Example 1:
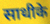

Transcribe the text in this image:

साथीके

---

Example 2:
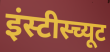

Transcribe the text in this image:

इंस्टीस्च्यूट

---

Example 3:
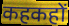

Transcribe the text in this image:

कहकहों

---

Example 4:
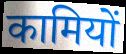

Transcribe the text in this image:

कामियों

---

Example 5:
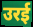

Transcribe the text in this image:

उरई